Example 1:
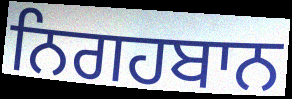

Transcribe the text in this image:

ਨਿਗਹਬਾਨ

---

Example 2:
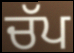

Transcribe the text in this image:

ਚੱਪ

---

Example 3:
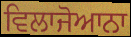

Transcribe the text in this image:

ਵਿਲਾਜੋਆਨਾ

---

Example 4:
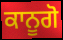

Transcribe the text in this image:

ਕਾਨੂਗੋ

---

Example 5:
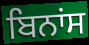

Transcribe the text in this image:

ਬਿਨਾਂਸ